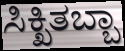
ಸಿಕ್ಖಿತಬ್ಬಾ